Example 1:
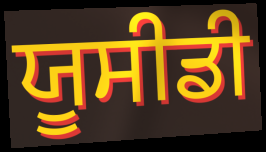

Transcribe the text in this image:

ਯੂਸੀਡੀ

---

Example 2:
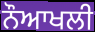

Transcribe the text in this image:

ਨੌਆਖਲੀ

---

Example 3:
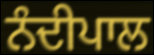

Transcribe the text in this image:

ਨੰਦੀਪਾਲ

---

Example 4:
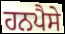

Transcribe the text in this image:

ਹਨਪੈਸੇ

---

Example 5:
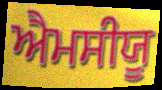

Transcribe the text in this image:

ਐਮਸੀਯੂ